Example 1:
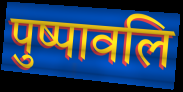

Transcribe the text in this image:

पुष्पावलि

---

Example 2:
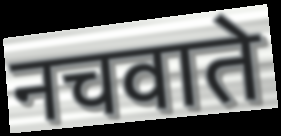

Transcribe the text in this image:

नचवाते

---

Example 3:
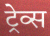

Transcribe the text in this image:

ट्रेव्स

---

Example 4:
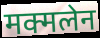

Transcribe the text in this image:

मक्मलेन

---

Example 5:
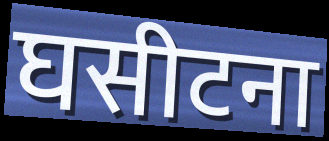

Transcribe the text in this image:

घसीटना